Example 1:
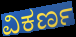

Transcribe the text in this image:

ವಿಕರ್ಣ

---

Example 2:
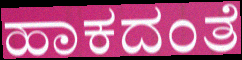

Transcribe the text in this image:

ಹಾಕದಂತೆ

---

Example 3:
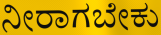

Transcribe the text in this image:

ನೀರಾಗಬೇಕು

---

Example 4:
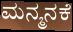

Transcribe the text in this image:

ಮನ್ಮನಕೆ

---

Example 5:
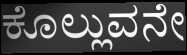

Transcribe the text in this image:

ಕೊಲ್ಲುವನೇ